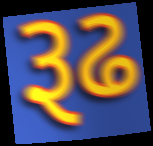
રૂઢ